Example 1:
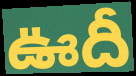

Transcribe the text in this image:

ఊదీ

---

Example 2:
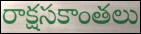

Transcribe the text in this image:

రాక్షసకాంతలు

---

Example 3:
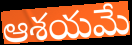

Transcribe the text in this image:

ఆశయమే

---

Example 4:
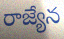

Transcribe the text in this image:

రాజ్యేన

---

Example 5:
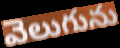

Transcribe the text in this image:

వెలుగును